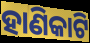
ହାଣିକାଟି